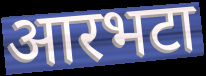
आरभटा